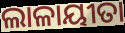
ଲାଳାୟୀତା